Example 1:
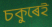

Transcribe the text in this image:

চকুৰেই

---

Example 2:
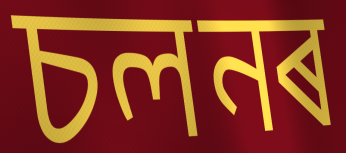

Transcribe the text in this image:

চলনৰ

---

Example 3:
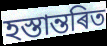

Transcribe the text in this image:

হস্তান্তৰিত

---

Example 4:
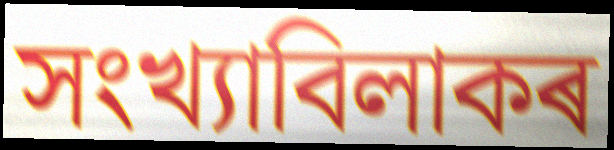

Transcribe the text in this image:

সংখ্যাবিলাকৰ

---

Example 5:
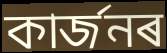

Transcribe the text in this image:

কাৰ্জনৰ